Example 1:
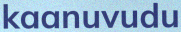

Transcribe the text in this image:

kaanuvudu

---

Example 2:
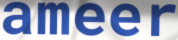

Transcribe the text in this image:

ameer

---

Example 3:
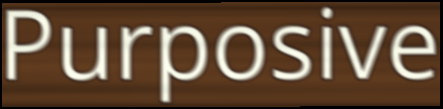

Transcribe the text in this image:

Purposive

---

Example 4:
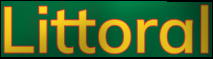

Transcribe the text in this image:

Littoral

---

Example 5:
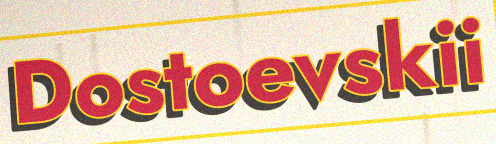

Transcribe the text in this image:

Dostoevskii